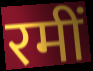
रमीं